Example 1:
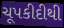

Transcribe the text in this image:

ચૂપકીદીથી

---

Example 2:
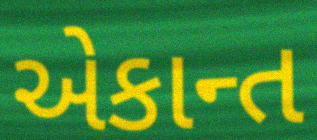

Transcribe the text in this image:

એકાન્ત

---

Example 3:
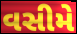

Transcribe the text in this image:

વસીમે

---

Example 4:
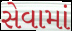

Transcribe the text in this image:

સેવામાં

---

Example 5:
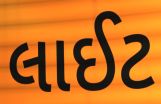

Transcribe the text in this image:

લાઈટ